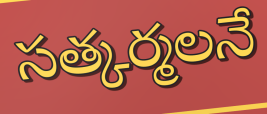
సత్కర్మలనే